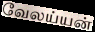
வேலய்யன்